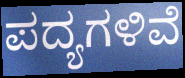
ಪದ್ಯಗಳಿವೆ